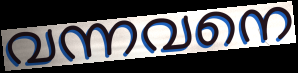
വന്നവനെ